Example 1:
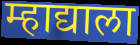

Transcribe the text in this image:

म्हाद्याला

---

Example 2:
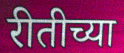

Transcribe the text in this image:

रीतीच्या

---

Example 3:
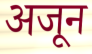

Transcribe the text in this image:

अजून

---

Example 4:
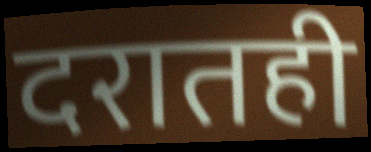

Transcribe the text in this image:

दरातही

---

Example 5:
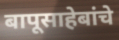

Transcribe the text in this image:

बापूसाहेबांचे